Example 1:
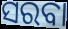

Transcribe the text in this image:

ସରବା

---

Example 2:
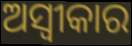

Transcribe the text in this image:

ଅସ୍ବୀକାର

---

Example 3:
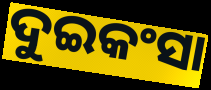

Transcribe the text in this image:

ଦୁଇକଂସା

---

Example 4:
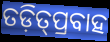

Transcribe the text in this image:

ତଡ଼ିତ୍‌ପ୍ରବାହ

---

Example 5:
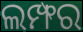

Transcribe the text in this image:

ଲମ୍ଫର